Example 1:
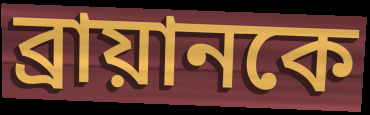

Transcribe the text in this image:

ব্রায়ানকে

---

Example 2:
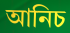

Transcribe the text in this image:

আনিচ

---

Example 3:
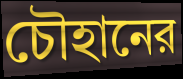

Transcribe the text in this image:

চৌহানের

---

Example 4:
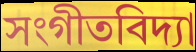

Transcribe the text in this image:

সংগীতবিদ্যা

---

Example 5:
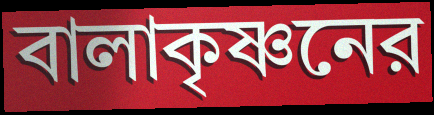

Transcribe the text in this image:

বালাকৃষ্ণনের